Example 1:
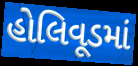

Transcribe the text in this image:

હોલિવૂડમાં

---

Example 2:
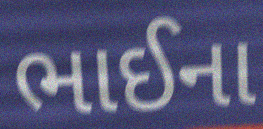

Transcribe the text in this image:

ભાઈના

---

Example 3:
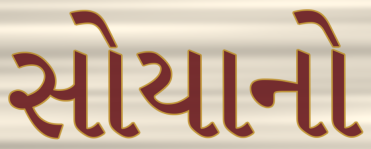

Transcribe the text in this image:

સોયાનો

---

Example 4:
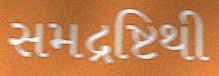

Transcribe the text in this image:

સમદ્રષ્ટિથી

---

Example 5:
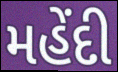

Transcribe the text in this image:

મહેંદી